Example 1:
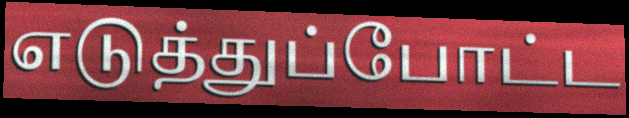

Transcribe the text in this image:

எடுத்துப்போட்ட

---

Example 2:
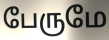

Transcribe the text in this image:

பேருமே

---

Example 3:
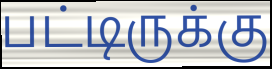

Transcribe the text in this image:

பட்டிருக்கு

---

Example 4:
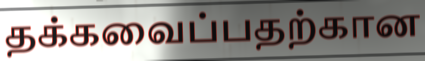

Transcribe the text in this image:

தக்கவைப்பதற்கான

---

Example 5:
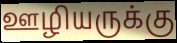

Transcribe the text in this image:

ஊழியருக்கு